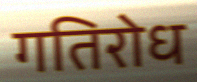
गतिरोध